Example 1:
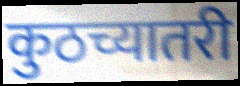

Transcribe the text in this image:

कुठच्यातरी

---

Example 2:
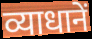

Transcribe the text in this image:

व्याधानें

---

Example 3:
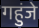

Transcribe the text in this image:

गहुंजे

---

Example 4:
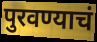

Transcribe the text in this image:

पुरवण्याचं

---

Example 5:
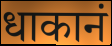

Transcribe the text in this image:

धाकानं